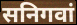
सनिगवां